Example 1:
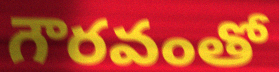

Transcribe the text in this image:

గౌరవంతో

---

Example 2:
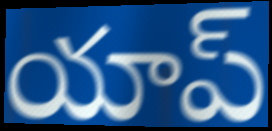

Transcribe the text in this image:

యాప్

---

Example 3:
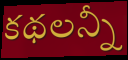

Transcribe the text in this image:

కథలన్నీ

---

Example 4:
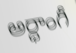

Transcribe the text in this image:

అర్ధాంగీ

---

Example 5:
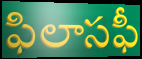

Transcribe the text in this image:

ఫిలాసఫీ